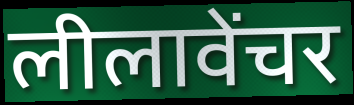
लीलावेंचर